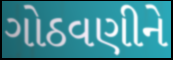
ગોઠવણીને